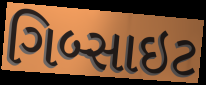
ગિબ્સાઇટ